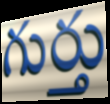
గుర్తు